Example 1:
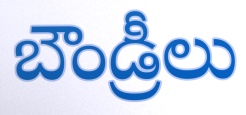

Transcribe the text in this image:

బౌండ్రీలు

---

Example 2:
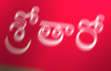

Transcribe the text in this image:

శ్రోతారో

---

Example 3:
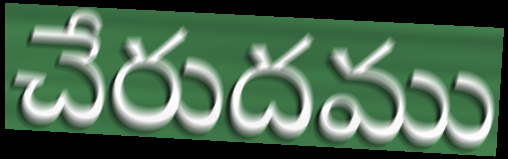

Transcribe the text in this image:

చేరుదము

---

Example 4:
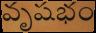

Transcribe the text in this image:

వృషభం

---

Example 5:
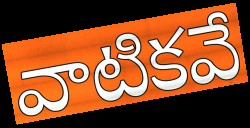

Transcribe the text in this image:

వాటికవే